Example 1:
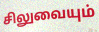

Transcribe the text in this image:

சிலுவையும்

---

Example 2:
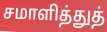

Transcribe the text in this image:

சமாளித்துத்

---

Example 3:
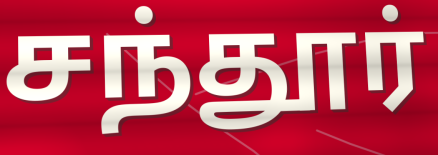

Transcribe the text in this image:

சந்தூர்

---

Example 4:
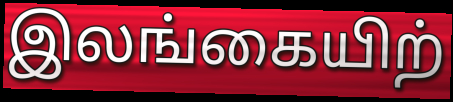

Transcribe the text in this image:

இலங்கையிற்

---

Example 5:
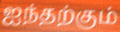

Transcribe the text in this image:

ஐந்தற்கும்